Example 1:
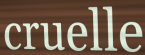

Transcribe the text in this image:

cruelle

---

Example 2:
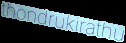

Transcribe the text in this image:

thondrukirathu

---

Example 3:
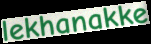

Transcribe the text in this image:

lekhanakke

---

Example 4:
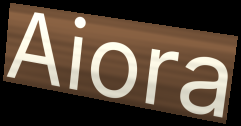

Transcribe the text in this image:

Aiora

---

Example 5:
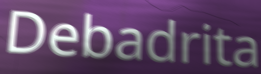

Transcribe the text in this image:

Debadrita